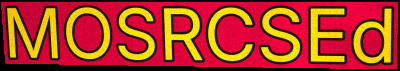
MOSRCSEd